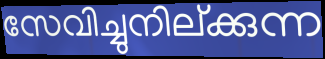
സേവിച്ചുനില്ക്കുന്ന